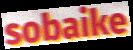
sobaike